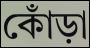
কোঁড়া